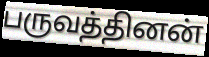
பருவத்தினன்